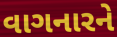
વાગનારને